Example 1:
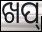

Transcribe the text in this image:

ଖପ୍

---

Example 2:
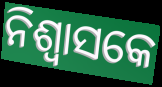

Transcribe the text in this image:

ନିଶ୍ଵାସକେ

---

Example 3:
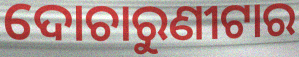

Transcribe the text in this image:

ଦୋଚାରୁଣୀଟାର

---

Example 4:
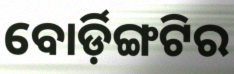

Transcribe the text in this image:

ବୋର୍ଡ଼ିଙ୍ଗଟିର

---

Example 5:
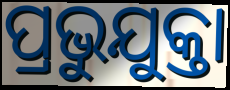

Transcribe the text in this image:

ପ୍ରଭୁଯୁକ୍ତା